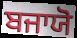
ਬਜਾਯੋ